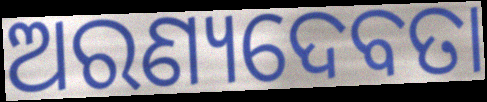
ଅରଣ୍ୟଦେବତା